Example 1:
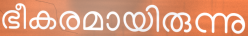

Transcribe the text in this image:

ഭീകരമായിരുന്നു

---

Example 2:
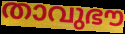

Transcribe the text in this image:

താവുഭൗ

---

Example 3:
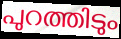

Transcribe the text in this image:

പുറത്തിടും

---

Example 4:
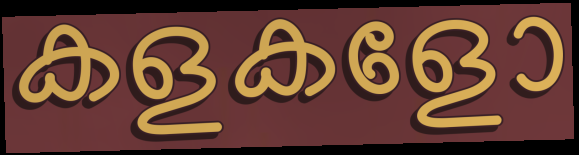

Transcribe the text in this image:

കളകളോ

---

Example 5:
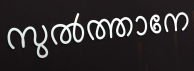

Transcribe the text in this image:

സുൽത്താനേ